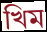
খিম